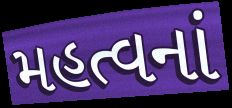
મહત્વનાં